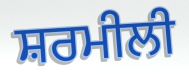
ਸ਼ਰਮੀਲੀ